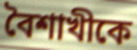
বৈশাখীকে